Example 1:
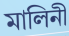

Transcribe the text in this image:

মালিনী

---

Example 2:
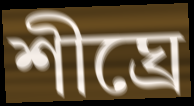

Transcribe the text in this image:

শীঘ্ৰে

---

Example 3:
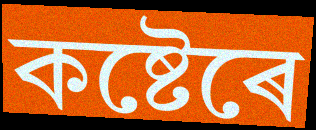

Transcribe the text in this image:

কষ্টেৰে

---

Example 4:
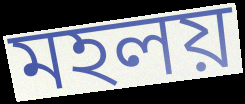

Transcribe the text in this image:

মহলয়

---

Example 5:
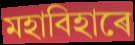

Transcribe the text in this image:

মহাবিহাৰে